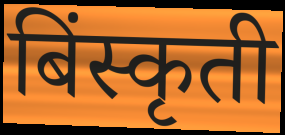
बिंस्कृती